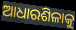
ଆଧାରଶିଳାକୁ